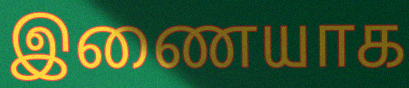
இணையாக